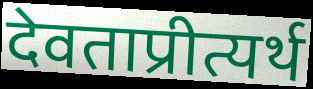
देवताप्रीत्यर्थ